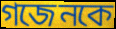
গজেনকে